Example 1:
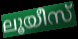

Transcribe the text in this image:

ലൂയീസ്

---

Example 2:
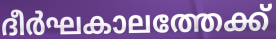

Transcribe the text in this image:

ദീർഘകാലത്തേക്ക്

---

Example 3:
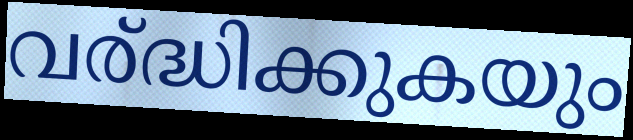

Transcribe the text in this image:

വര്ദ്ധിക്കുകയും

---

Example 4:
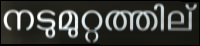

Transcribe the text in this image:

നടുമുറ്റത്തില്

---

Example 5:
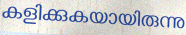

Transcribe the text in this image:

കളിക്കുകയായിരുന്നു